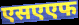
एसएएफ